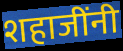
शहाजींनी